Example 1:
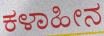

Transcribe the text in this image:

ಕಳಾಹೀನ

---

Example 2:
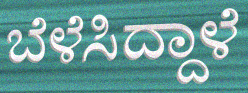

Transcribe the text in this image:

ಬೆಳೆಸಿದ್ದಾಳೆ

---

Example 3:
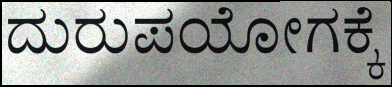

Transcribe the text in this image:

ದುರುಪಯೋಗಕ್ಕೆ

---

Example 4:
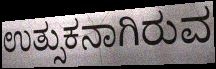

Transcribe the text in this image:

ಉತ್ಸುಕನಾಗಿರುವ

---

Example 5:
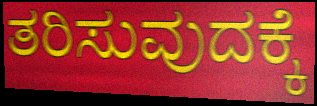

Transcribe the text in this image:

ತರಿಸುವುದಕ್ಕೆ